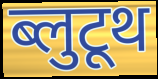
ब्लुटूथ